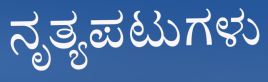
ನೃತ್ಯಪಟುಗಳು